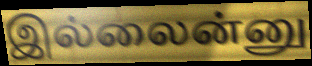
இல்லைன்னு